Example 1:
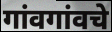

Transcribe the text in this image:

गांवगांवचे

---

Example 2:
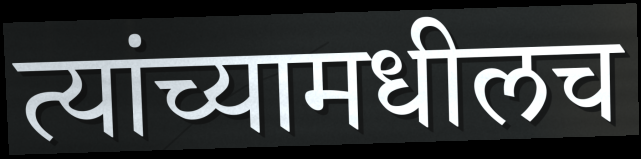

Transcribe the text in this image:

त्यांच्यामधीलच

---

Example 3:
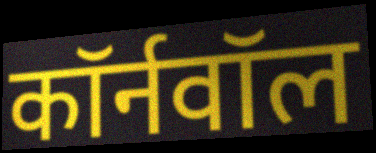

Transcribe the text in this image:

कॉर्नवॉल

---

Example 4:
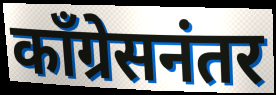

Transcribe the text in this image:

काँग्रेसनंतर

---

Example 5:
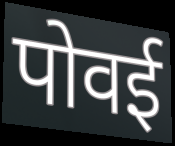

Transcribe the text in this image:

पोवई